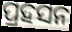
ପ୍ରହସନ